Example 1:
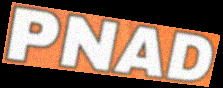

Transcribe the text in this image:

PNAD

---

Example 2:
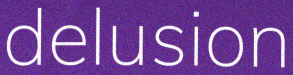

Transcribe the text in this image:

delusion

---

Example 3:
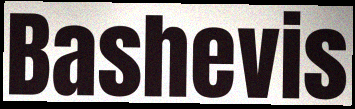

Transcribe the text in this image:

Bashevis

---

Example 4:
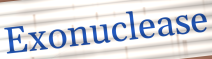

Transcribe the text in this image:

Exonuclease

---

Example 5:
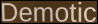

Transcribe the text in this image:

Demotic